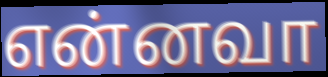
என்னவா